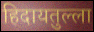
हिदायतुल्ला